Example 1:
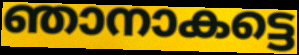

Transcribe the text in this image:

ഞാനാകട്ടെ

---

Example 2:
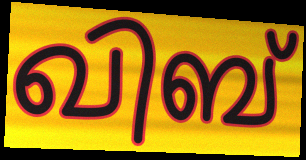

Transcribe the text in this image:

ഖിബ്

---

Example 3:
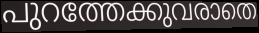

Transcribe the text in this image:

പുറത്തേക്കുവരാതെ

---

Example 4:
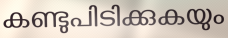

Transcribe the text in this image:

കണ്ടുപിടിക്കുകയും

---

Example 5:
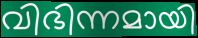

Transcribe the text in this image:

വിഭിന്നമായി